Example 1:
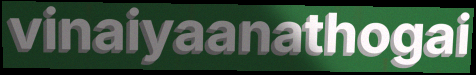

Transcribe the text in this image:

vinaiyaanathogai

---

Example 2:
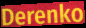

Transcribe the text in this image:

Derenko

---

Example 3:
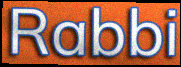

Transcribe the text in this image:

Rabbi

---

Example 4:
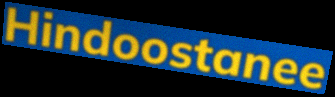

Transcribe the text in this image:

Hindoostanee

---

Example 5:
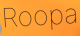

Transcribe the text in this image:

Roopa